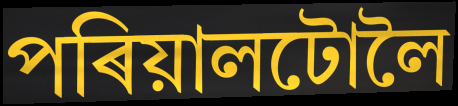
পৰিয়ালটোলৈ